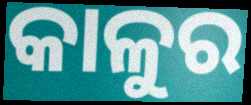
କାଳୁର